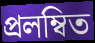
প্রলম্বিত